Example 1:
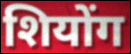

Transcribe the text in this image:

शियोंग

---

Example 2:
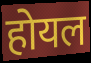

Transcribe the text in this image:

होयल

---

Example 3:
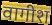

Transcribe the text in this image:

वागीश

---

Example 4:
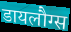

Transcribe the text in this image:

डायलौग्स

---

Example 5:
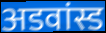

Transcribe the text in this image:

अडवांस्ड